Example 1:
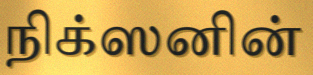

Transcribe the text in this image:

நிக்ஸனின்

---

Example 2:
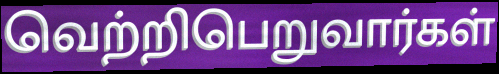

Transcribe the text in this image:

வெற்றிபெறுவார்கள்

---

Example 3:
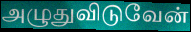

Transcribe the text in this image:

அழுதுவிடுவேன்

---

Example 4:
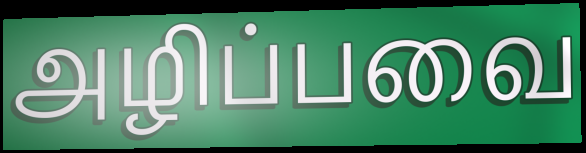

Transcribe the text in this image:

அழிப்பவை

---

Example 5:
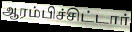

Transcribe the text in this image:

ஆரம்பிச்சிட்டார்